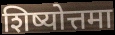
शिष्योत्तमा